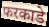
फरकाडे